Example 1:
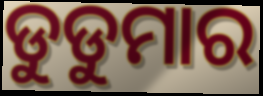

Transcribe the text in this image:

ଡୁଡୁମାର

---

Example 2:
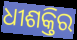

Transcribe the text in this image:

ଧୀଶକ୍ତିର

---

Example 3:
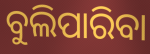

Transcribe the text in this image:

ବୁଲିପାରିବା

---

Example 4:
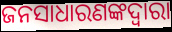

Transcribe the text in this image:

ଜନସାଧାରଣଙ୍କଦ୍ବାରା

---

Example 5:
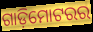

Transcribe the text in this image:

ଗାଡ଼ିମୋଟରର